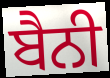
ਬੈਨੀ